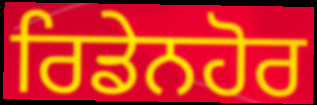
ਰਿਡੇਨਹੋਰ